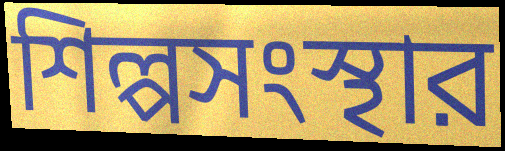
শিল্পসংস্থার